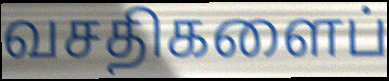
வசதிகளைப்